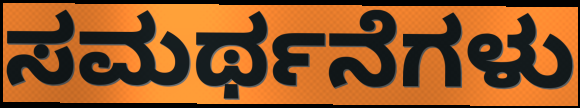
ಸಮರ್ಥನೆಗಳು